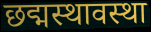
छद्मस्थावस्था